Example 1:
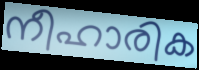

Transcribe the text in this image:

നീഹാരിക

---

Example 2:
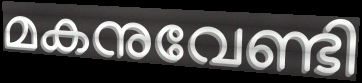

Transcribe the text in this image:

മകനുവേണ്ടി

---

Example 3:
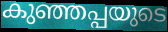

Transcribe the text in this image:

കുഞ്ഞപ്പയുടെ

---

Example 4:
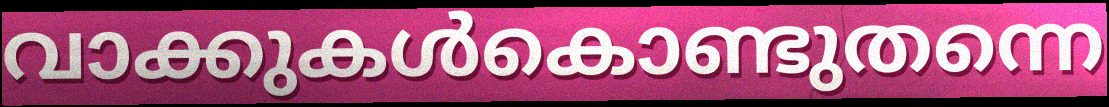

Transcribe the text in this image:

വാക്കുകൾകൊണ്ടുതന്നെ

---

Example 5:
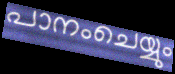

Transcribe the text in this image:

പാനംചെയ്യും